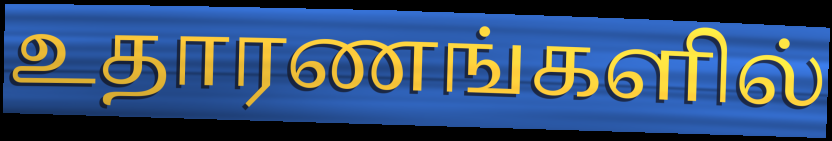
உதாரணங்களில்